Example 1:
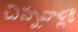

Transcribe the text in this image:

చిన్నవాళ్లకి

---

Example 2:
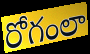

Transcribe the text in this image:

రోగంలా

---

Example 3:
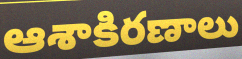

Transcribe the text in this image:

ఆశాకిరణాలు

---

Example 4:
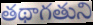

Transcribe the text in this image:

తథాగతుని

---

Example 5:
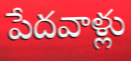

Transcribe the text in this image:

పేదవాళ్లు